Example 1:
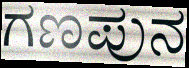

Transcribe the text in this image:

ಗಣಪುನ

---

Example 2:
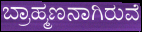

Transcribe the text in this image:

ಬ್ರಾಹ್ಮಣನಾಗಿರುವೆ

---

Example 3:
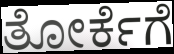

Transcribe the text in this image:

ತೋರ್ಕೆಗೆ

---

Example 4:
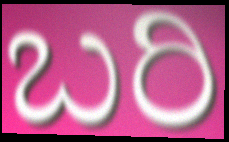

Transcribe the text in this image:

ಬರಿ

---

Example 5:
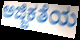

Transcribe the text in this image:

ಅಜ್ಜಿಕತೆಯ